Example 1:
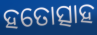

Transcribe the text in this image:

ହତୋତ୍ସାହ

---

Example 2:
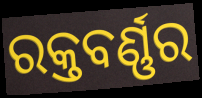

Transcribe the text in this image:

ରକ୍ତବର୍ଣ୍ଣର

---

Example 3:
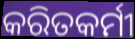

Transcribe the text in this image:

କରିତକର୍ମୀ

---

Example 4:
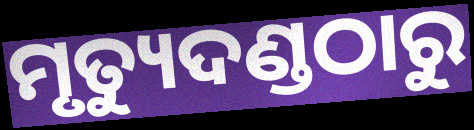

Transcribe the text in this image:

ମୃତ୍ୟୁଦଣ୍ଡଠାରୁ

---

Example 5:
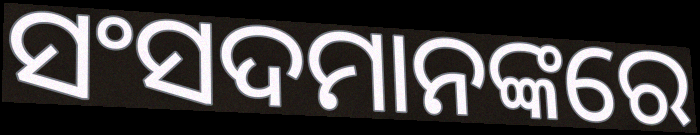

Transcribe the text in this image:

ସଂସଦମାନଙ୍କରେ